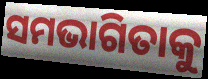
ସମଭାଗିତାକୁ